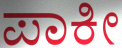
ಪಾಕೀ